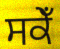
ਸਕੇਁ